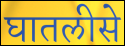
घातलीसे